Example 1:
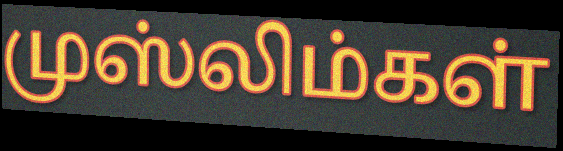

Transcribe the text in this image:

முஸ்லிம்கள்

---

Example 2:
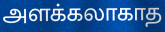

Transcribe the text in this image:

அளக்கலாகாத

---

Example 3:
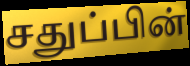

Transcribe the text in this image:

சதுப்பின்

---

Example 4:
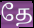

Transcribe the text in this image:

தே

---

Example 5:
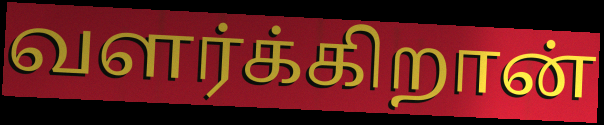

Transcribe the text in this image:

வளர்க்கிறான்